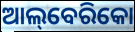
ଆଲ୍‌ବେରିକୋ